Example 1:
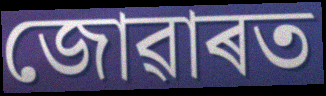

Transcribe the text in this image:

জোৱাৰত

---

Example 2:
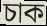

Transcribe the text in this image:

চাক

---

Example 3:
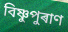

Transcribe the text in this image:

বিষ্ণুপুৰাণ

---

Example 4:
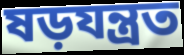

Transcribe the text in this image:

ষড়যন্ত্ৰত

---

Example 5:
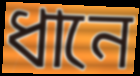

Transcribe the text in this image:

ধানে